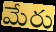
మేరు